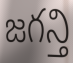
జగన్తి